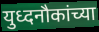
युध्दनौकांच्या